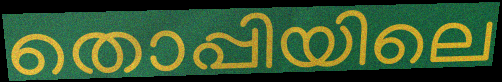
തൊപ്പിയിലെ